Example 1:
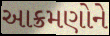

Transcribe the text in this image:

આક્રમણોને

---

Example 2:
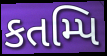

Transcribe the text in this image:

કતમ્પિ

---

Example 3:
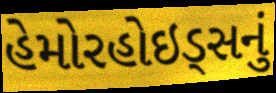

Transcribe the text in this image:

હેમોરહોઇડ્સનું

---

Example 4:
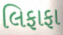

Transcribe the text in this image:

લિફાફા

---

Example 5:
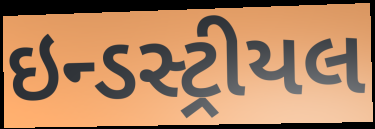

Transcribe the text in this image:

ઇન્ડસ્ટ્રીયલ